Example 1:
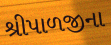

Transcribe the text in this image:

શ્રીપાળજીના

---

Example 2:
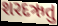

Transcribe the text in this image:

શરદઋતુ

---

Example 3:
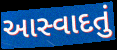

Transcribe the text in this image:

આસ્વાદતું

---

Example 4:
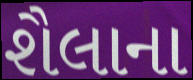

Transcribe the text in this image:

શૈલાના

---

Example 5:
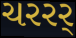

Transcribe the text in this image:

ચરરર્